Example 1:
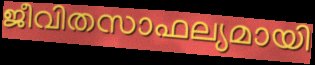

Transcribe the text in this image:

ജീവിതസാഫല്യമായി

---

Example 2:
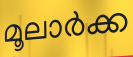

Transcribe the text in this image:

മൂലാർക്ക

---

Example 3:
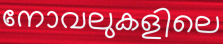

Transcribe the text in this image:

നോവലുകളിലെ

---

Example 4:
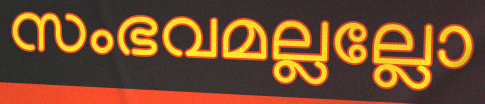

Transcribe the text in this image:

സംഭവമല്ലല്ലോ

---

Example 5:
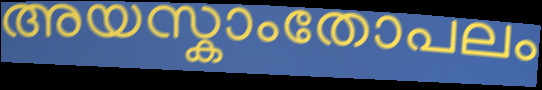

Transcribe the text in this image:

അയസ്കാംതോപലം